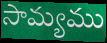
సామ్యము